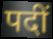
पदीं